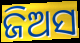
ଜିଅସ